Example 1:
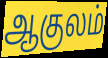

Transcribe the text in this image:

ஆகுலம்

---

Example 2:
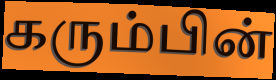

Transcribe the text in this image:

கரும்பின்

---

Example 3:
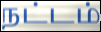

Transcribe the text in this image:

நட்டம்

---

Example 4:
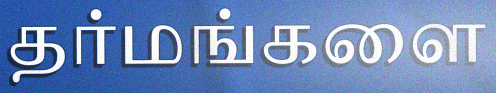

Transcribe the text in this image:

தர்மங்களை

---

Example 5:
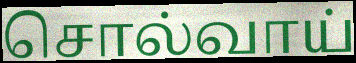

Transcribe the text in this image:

சொல்வாய்